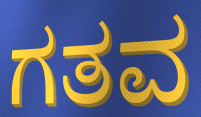
ಗತವ